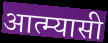
आत्म्यासी